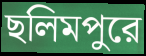
ছলিমপুরে